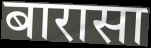
बारासा